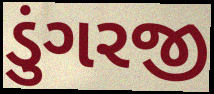
ડુંગરજી